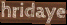
hridaye